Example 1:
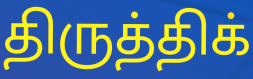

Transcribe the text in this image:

திருத்திக்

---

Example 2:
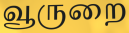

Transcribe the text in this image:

வூருறை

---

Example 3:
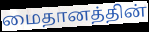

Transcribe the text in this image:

மைதானத்தின்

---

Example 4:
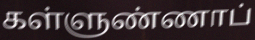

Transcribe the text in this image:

கள்ளுண்ணாப்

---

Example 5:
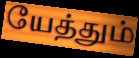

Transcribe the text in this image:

யேத்தும்